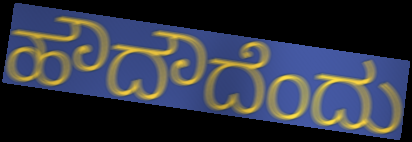
ಹೌದೌದೆಂದು